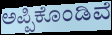
ಅಪ್ಪಿಕೊಂಡಿವೆ